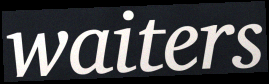
waiters